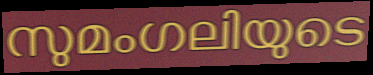
സുമംഗലിയുടെ